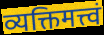
व्यक्तिमत्त्वं